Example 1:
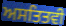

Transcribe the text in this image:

ਅਸਤਿਤਵੀ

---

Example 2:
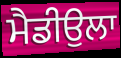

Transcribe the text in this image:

ਮੈਡੀਉਲਾ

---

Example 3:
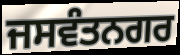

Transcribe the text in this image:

ਜਸਵੰਤਨਗਰ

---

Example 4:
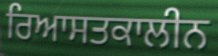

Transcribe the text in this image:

ਰਿਆਸਤਕਾਲੀਨ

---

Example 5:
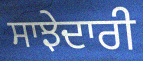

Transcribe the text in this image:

ਸਾਝੇਦਾਰੀ